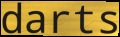
darts